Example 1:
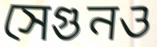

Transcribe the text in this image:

সেগুনও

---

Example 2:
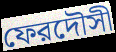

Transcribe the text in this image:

ফেরদৌসী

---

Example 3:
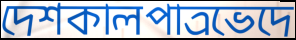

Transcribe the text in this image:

দেশকালপাত্রভেদে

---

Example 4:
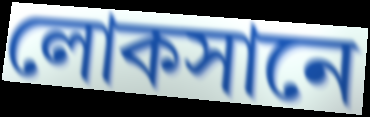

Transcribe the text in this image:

লোকসানে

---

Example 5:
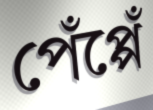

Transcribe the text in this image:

পেঁপ্পেঁ